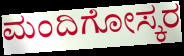
ಮಂದಿಗೋಸ್ಕರ